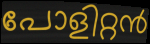
പോളിറ്റൻ